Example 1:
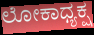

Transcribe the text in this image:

ಲೋಕಾಧ್ಯಕ್ಷ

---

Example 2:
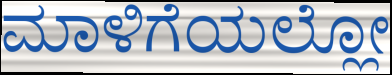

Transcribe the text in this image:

ಮಾಳಿಗೆಯಲ್ಲೋ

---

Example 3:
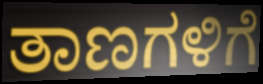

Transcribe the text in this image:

ತಾಣಗಳಿಗೆ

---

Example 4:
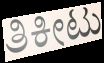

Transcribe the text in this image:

ತಿಕೀಟು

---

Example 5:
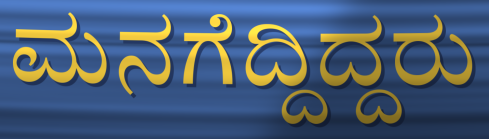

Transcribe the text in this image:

ಮನಗೆದ್ದಿದ್ದರು